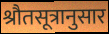
श्रौतसूत्रानुसार